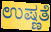
ಉಷ್ಣತೆ